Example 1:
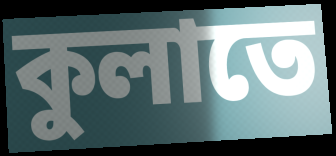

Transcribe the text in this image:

কুলাতে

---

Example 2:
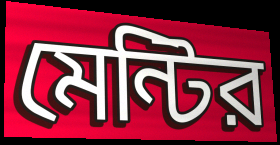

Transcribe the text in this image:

মেন্টির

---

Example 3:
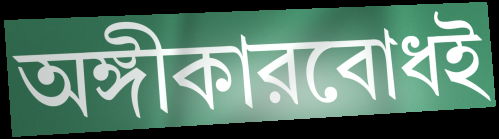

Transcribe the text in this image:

অঙ্গীকারবোধই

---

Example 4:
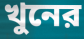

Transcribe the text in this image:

খুনের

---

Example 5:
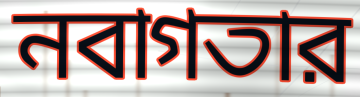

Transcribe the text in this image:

নবাগতার